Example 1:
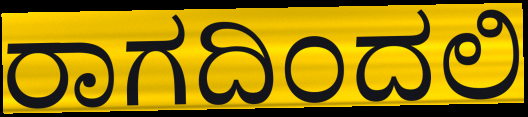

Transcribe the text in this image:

ರಾಗದಿಂದಲಿ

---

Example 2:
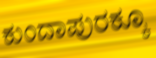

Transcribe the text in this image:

ಕುಂದಾಪುರಕ್ಕೂ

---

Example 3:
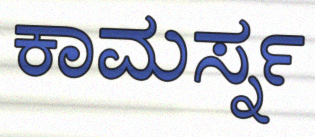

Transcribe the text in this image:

ಕಾಮರ್ಸ್ನ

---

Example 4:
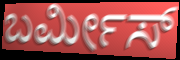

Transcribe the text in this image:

ಬರ್ಮೀಸ್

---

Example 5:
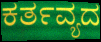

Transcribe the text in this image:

ಕರ್ತವ್ಯದ